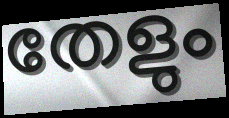
തേളും